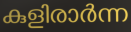
കുളിരാർന്ന